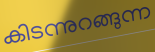
കിടന്നുറങ്ങുന്ന